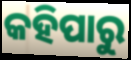
କହିପାରୁ